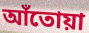
আঁতোয়া